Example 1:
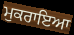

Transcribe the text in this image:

ਮੁਕਰਾਇਆ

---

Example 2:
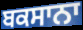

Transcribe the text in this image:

ਬਕਸਾਨਾ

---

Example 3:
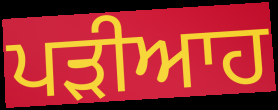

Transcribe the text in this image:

ਪੜੀਆਹ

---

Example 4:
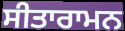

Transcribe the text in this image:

ਸੀਤਾਰਾਮਨ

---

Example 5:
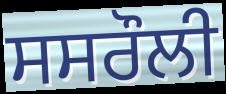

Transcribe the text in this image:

ਸਸਰੌਲੀ